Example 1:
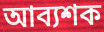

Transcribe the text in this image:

আব্যশক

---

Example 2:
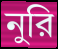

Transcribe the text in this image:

নুরি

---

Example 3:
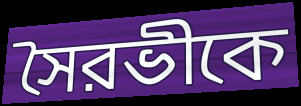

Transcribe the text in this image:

সৈরভীকে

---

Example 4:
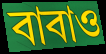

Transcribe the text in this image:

বাবাও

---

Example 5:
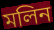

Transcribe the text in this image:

মলিন